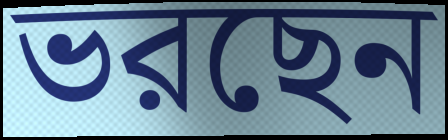
ভরছেন